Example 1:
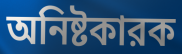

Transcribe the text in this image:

অনিষ্টকারক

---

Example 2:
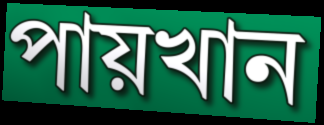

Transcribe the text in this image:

পায়খান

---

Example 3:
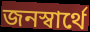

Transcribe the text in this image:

জনস্বার্থে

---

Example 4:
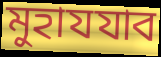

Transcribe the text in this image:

মুহাযযাব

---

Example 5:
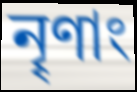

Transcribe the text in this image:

নৄণাং